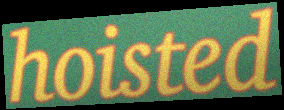
hoisted